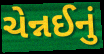
ચેન્નઈનું